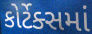
કોર્ટેક્સમાં